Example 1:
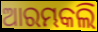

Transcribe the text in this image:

ଆରମ୍ଭକଲି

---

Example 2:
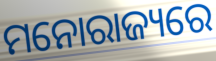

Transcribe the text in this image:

ମନୋରାଜ୍ୟରେ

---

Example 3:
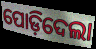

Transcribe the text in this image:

ପୋଡ଼ିଦେଲା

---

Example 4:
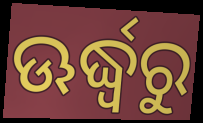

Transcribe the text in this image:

ଊର୍ଦ୍ଧ୍ଵରୁ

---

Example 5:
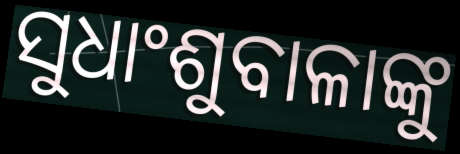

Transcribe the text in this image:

ସୁଧାଂଶୁବାଳାଙ୍କୁ